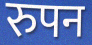
रुपन